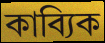
কাব্যিক